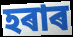
হৰাৰ